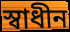
স্ৱাধীন